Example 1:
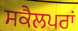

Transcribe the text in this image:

ਸਕੈਲਪਰਾਂ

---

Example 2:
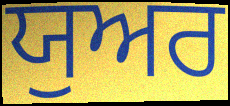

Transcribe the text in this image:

ਯੁਅਰ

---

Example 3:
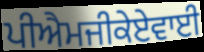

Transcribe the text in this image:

ਪੀਐਮਜੀਕੇਏਵਾਈ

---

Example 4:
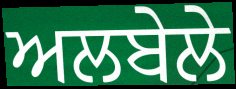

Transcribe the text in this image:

ਅਲਬੇਲੇ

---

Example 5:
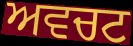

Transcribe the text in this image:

ਅਵਚਟ